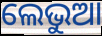
ଲେଭୁଆ